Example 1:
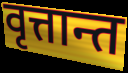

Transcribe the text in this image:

वृत्तान्त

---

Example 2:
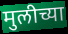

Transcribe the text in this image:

मुलीच्या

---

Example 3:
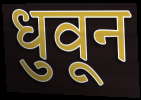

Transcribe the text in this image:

धुवून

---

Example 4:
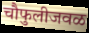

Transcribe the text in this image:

चौफुलीजवळ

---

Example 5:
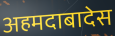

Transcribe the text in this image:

अहमदाबादेस